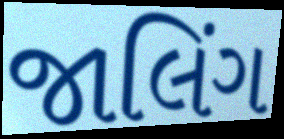
જાલિંગ